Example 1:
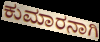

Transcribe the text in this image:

ಕುಮಾರನಾಗಿ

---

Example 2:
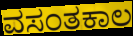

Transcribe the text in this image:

ವಸಂತಕಾಲ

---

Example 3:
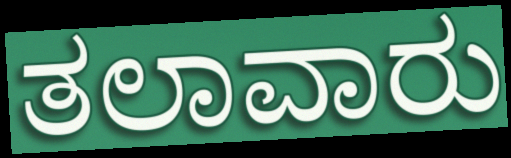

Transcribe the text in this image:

ತಲಾವಾರು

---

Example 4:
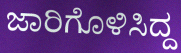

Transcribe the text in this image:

ಜಾರಿಗೊಳಿಸಿದ್ದ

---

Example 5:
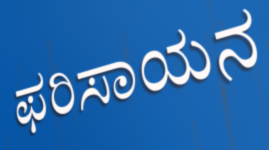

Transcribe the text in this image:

ಫರಿಸಾಯನ